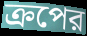
ক্রপের